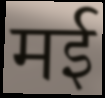
मई